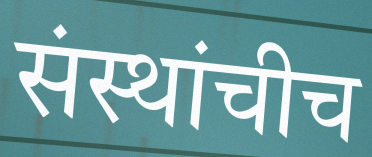
संस्थांचीच